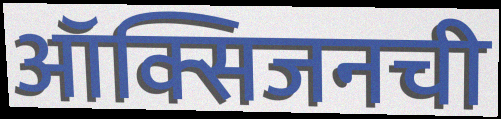
ऑक्सिजनची